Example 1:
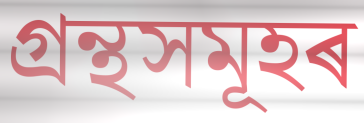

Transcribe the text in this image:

গ্ৰন্থসমূহৰ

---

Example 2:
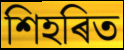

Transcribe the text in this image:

শিহৰিত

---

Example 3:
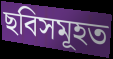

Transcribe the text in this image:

ছবিসমূহত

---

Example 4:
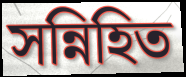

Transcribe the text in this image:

সন্নিহিত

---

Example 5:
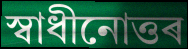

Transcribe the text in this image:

স্বাধীনোত্তৰ